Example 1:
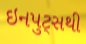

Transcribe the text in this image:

ઇનપુટ્સથી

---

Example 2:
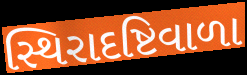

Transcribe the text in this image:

સ્થિરાદષ્ટિવાળા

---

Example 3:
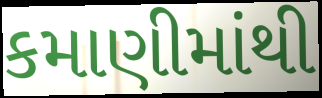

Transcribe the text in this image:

કમાણીમાંથી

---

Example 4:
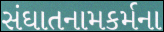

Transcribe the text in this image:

સંઘાતનામકર્મના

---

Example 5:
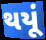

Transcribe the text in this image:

થયૂં